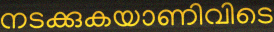
നടക്കുകയാണിവിടെ